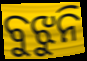
ବୁଝୁନି